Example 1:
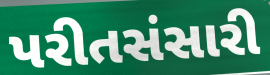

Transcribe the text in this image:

પરીતસંસારી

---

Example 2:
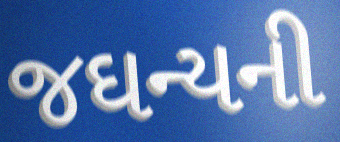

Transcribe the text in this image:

જઘન્યની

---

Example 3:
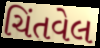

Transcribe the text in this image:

ચિંતવેલ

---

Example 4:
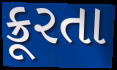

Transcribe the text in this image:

ક્રૂરતા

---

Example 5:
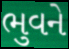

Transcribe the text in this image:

ભુવને